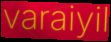
varaiyil